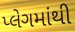
પ્લેગમાંથી